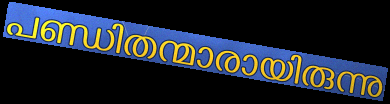
പണ്ഡിതന്മാരായിരുന്നു